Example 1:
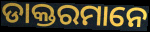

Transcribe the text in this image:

ଡାକ୍ତରମାନେ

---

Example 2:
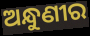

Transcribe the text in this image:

ଅନ୍ଧୁଣୀର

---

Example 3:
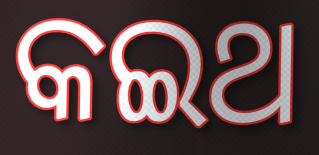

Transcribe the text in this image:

କଇଥ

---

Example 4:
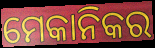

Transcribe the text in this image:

ମେକାନିକର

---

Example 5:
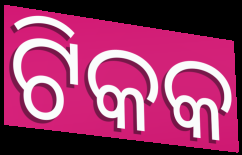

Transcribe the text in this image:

ଟିକକ